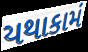
યથાકામં